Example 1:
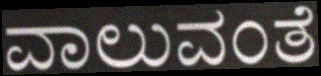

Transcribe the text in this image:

ವಾಲುವಂತೆ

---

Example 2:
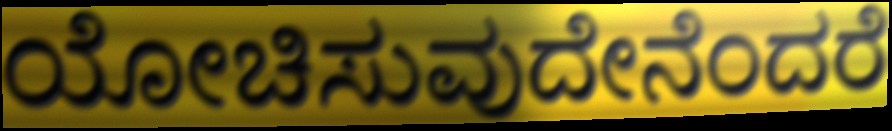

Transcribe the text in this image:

ಯೋಚಿಸುವುದೇನೆಂದರೆ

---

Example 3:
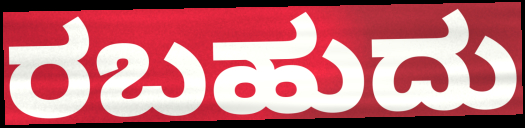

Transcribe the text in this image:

ರಬಹುದು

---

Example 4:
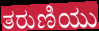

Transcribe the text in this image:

ತರುಣಿಯು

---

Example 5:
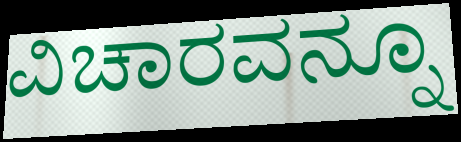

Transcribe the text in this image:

ವಿಚಾರವನ್ನೂ